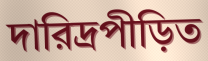
দারিদ্রপীড়িত